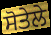
ਸੋਤੇਲੇ